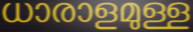
ധാരാളമുള്ള